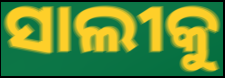
ସାଲୀକୁ